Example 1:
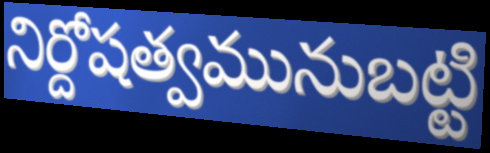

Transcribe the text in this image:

నిర్దోషత్వమునుబట్టి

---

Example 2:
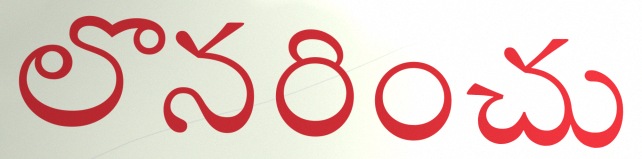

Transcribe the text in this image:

లొనరించు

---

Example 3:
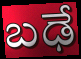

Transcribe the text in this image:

బఢే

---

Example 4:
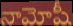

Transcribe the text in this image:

నామోషీ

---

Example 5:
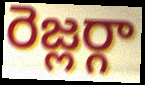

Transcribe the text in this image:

రెజ్లర్గా